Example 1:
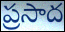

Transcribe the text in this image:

ప్రసాద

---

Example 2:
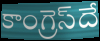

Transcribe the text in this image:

కాంగ్రెస్‌దే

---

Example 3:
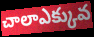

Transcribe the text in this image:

చాలాఎక్కువ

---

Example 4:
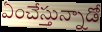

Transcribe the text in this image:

ఏంచేస్తున్నాడో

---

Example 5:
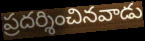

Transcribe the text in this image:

ప్రదర్శించినవాడు